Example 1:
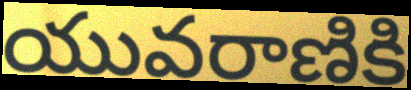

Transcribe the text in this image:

యువరాణికి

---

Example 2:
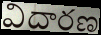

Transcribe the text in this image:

విదారణ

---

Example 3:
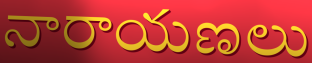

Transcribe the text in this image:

నారాయణలు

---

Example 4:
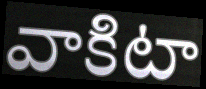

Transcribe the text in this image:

వాకిటా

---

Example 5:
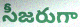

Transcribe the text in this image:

సీజరుగా